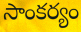
సాంకర్యం